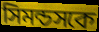
সিমন্ডসকে